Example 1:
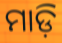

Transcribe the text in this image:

ମାଡ଼ି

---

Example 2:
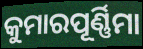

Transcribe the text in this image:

କୁମାରପୂର୍ଣ୍ଣିମା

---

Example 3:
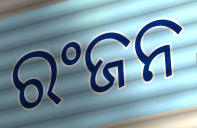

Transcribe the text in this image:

ରଂଜନ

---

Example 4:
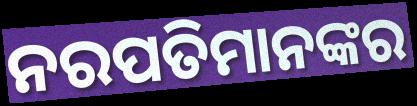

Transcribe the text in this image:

ନରପତିମାନଙ୍କର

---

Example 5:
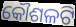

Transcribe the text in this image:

କୌଶଳଟି